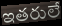
ఇతరులే